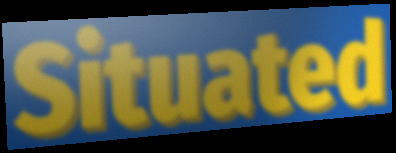
Situated